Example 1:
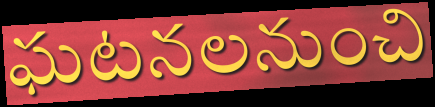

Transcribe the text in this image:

ఘటనలనుంచి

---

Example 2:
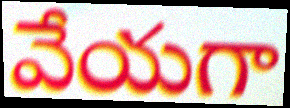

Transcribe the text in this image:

వేయగా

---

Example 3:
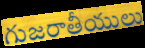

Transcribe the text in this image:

గుజరాతీయులు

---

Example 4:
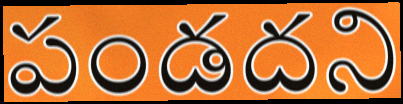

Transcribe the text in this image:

పండదని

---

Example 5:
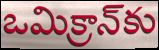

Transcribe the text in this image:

ఒమిక్రాన్‌కు